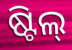
ଷ୍ଟିଲ୍